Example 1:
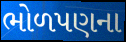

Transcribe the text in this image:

ભોળપણના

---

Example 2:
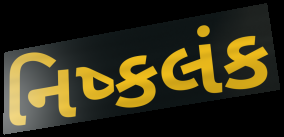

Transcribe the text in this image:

નિષ્કલંક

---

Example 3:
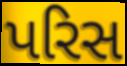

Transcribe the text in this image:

પરિસ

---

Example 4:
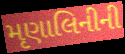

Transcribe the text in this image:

મૃણાલિનીની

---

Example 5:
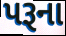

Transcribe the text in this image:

પરૂના